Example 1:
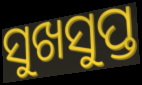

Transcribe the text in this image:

ସୁଖସୁପ୍ତ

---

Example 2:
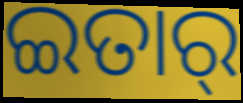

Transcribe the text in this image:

ଇତାର୍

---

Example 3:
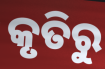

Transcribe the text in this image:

କୃତିରୁ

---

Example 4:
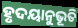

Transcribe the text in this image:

ହୃଦୟାନୁଭୂତି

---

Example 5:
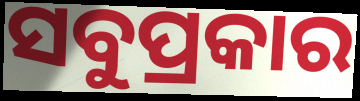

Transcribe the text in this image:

ସବୁପ୍ରକାର